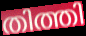
തിത്തി